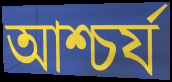
আশ্চৰ্য